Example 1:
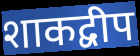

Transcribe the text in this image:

शाकद्वीप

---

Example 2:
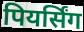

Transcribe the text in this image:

पियर्सिंग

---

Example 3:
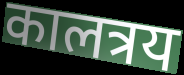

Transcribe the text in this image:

कालत्रय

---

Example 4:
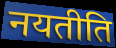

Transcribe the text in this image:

नयतीति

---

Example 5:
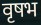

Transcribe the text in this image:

वृषभ